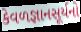
કેવળજ્ઞાનસૂર્યનો